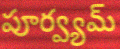
పూర్వ్యమ్